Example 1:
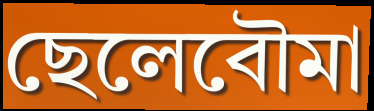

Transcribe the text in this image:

ছেলেবৌমা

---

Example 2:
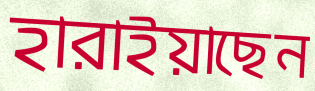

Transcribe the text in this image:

হারাইয়াছেন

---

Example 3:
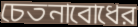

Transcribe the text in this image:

চেতনাবোধের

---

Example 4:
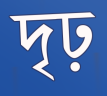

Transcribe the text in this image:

দৃঢ়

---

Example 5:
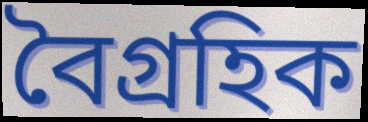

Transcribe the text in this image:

বৈগ্রহিক